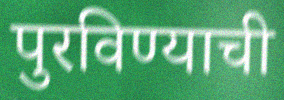
पुरविण्याची